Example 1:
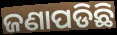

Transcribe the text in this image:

ଜଣାପଡିଛି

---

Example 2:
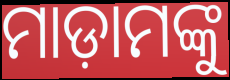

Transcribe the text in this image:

ମାଡ଼ାମଙ୍କୁ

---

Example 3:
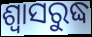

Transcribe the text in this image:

ଶ୍ୱାସରୁଦ୍ଧ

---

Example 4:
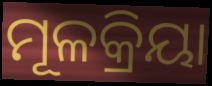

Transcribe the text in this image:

ମୂଳକ୍ରିୟା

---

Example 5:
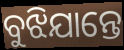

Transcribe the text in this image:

ବୁଝିଯାନ୍ତେ